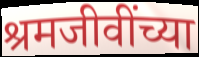
श्रमजीवींच्या